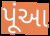
પૂંઆ